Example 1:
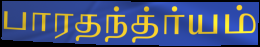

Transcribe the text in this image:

பாரதந்த்ர்யம்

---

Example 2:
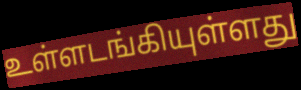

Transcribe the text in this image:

உள்ளடங்கியுள்ளது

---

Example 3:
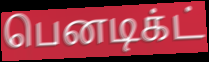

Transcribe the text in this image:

பெனடிக்ட்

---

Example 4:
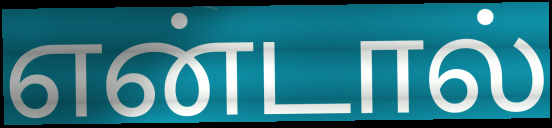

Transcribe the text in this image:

என்டால்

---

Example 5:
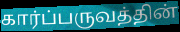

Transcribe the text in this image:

கார்ப்பருவத்தின்